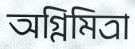
অগ্নিমিত্রা